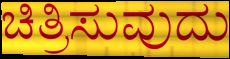
ಚಿತ್ರಿಸುವುದು